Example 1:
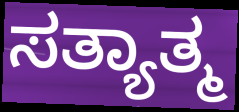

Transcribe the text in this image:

ಸತ್ಯಾತ್ಮ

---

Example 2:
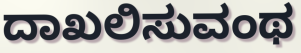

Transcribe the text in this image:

ದಾಖಲಿಸುವಂಥ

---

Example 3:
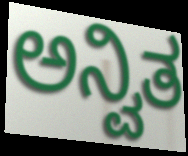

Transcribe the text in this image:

ಅನ್ವಿತ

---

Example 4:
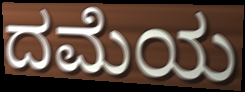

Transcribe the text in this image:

ದಮೆಯ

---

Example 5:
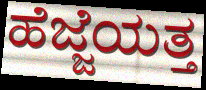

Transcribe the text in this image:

ಹೆಜ್ಜೆಯತ್ತ